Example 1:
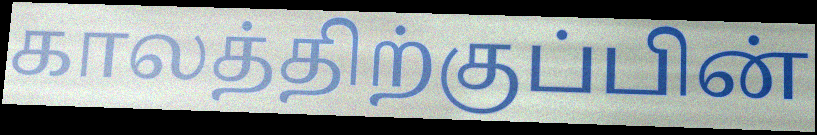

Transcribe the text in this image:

காலத்திற்குப்பின்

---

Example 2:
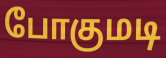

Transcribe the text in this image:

போகுமடி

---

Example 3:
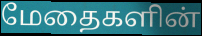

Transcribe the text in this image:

மேதைகளின்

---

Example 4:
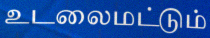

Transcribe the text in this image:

உடலைமட்டும்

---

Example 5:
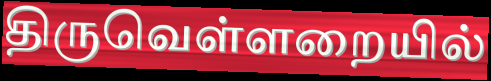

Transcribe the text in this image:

திருவெள்ளறையில்